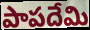
పాపదేమి